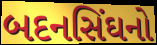
બદનસિંઘનો